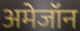
अमेजॉन